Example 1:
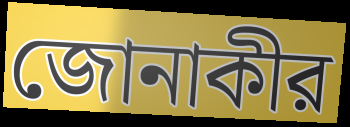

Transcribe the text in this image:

জোনাকীর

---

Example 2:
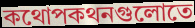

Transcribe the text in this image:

কথোপকথনগুলোতে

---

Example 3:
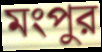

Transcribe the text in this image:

মংপুর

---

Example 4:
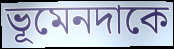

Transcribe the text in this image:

ভূমেনদাকে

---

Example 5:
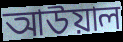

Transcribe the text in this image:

আউয়াল